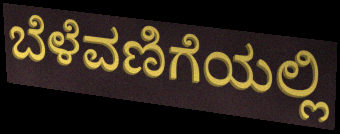
ಬೆಳೆವಣಿಗೆಯಲ್ಲಿ